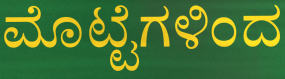
ಮೊಟ್ಟೆಗಳಿಂದ